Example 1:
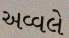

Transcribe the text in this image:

અવ્વલે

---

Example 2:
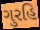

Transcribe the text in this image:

ગુરહિ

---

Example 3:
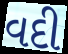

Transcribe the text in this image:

વદી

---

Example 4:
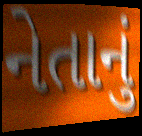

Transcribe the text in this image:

નેતાનું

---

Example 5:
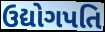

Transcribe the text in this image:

ઉદ્યોગપતિ